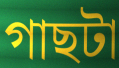
গাছটা